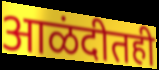
आळंदीतही